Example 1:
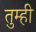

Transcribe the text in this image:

तुम्ही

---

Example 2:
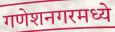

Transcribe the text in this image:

गणेशनगरमध्ये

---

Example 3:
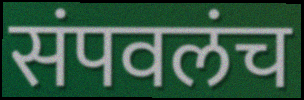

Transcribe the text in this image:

संपवलंच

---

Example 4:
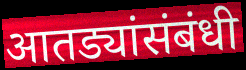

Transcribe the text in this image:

आतड्यांसंबंधी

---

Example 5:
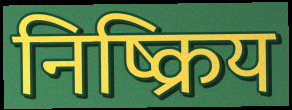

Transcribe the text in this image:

निष्क्रिय